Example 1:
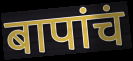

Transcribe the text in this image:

बापांचं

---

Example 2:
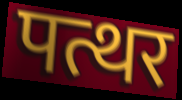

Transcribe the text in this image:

पत्थर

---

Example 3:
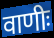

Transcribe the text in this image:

वाणीः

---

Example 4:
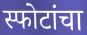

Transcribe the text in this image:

स्फोटांचा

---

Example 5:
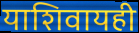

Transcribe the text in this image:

याशिवायही